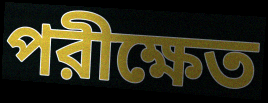
পরীক্ষেত